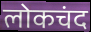
लोकचंद